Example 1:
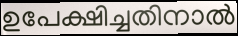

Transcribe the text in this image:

ഉപേക്ഷിച്ചതിനാൽ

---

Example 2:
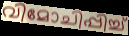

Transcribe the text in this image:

വിമോചിപ്പിച്ച്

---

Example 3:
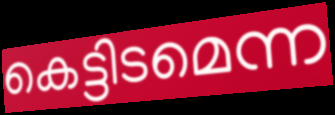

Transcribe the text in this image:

കെട്ടിടമെന്ന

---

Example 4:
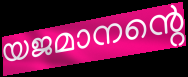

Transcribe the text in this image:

യജമാനന്റെ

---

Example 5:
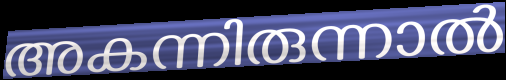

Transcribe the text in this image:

അകന്നിരുന്നാൽ